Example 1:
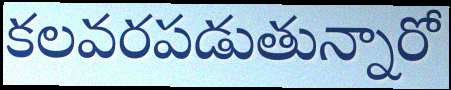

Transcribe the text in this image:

కలవరపడుతున్నారో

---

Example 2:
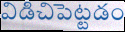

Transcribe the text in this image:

విడిచిపెట్టడం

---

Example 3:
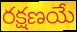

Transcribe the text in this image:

రక్షణయే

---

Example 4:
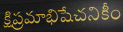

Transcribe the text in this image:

క్షిప్రమాభిషేచనికీం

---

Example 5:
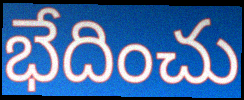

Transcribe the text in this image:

భేదించు